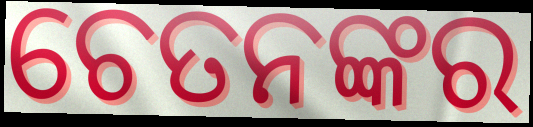
ଚେତନଙ୍କର